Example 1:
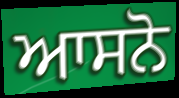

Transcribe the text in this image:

ਆਸਨੋ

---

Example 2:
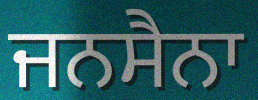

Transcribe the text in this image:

ਜਨਸੈਨਾ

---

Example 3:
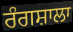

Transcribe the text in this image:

ਰੰਗਸ਼ਾਲਾ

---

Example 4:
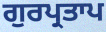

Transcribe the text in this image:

ਗੁਰਪ੍ਰਤਾਪ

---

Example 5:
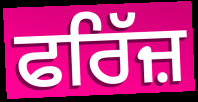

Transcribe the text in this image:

ਫਰਿੱਜ਼